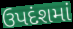
ઉપદંશમાં